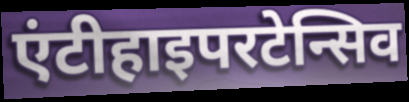
एंटीहाइपरटेन्सिव